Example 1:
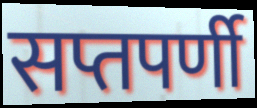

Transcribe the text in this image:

सप्तपर्णी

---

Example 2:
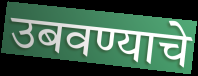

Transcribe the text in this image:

उबवण्याचे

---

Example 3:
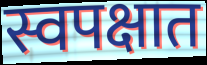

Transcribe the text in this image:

स्वपक्षात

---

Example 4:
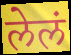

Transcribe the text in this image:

लेलं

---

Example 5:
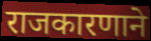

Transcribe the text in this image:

राजकारणाने